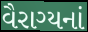
વૈરાગ્યનાં